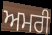
ਅਮਰੀ